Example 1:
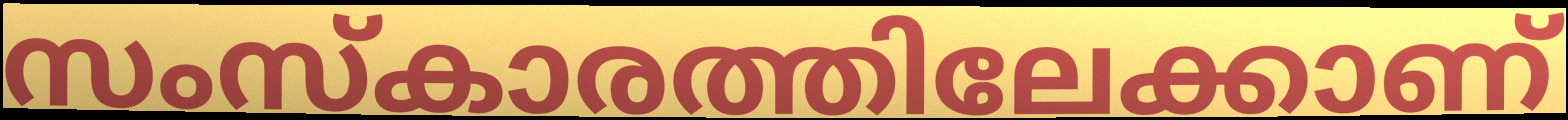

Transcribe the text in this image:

സംസ്കാരത്തിലേക്കാണ്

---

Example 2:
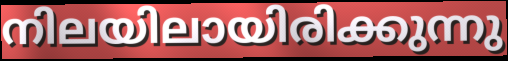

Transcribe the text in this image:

നിലയിലായിരിക്കുന്നു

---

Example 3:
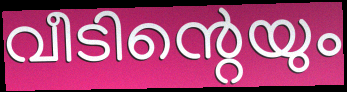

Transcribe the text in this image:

വീടിന്റെയും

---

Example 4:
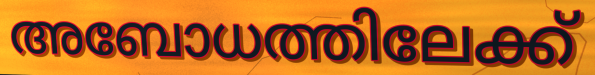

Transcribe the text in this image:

അബോധത്തിലേക്ക്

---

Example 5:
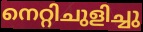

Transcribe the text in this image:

നെറ്റിചുളിച്ചു